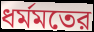
ধর্মমতের